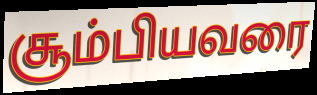
சூம்பியவரை